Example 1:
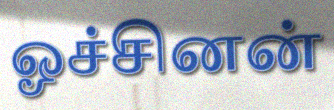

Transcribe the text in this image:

ஓச்சினன்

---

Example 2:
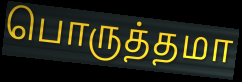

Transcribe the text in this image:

பொருத்தமா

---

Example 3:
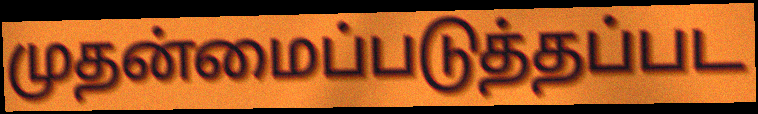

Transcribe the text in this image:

முதன்மைப்படுத்தப்பட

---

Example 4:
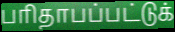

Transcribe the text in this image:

பரிதாபப்பட்டுக்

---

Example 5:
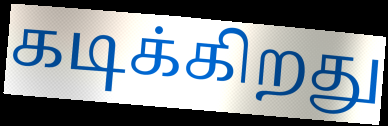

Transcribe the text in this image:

கடிக்கிறது